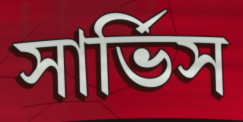
সার্ভিস